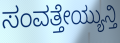
ಸಂವತ್ತೇಯ್ಯುನ್ತಿ